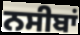
ਨਸੀਬਾਂ